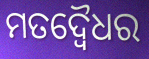
ମତଦ୍ୱୈଧର